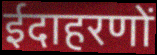
ईदाहरणों